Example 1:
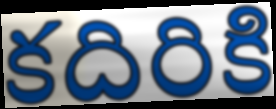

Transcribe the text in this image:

కదిరికి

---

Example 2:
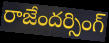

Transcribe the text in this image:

రాజేందర్సింగ్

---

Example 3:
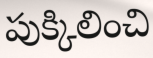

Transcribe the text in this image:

పుక్కిలించి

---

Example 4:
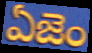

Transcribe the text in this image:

ఏజెం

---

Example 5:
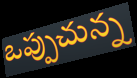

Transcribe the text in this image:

ఒప్పుచున్న